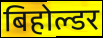
बिहोल्डर